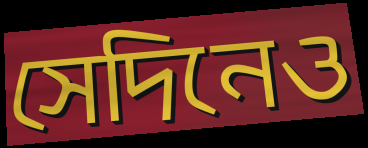
সেদিনেও